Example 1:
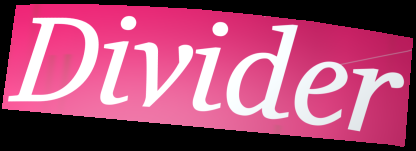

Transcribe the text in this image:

Divider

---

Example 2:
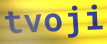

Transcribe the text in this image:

tvoji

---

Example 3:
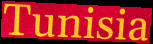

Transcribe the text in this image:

Tunisia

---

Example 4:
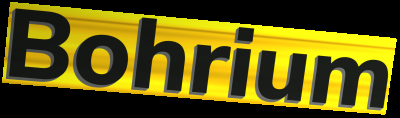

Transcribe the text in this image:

Bohrium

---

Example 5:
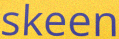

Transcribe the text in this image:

skeen